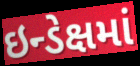
ઇન્ડેક્ષમાં